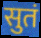
सुतं